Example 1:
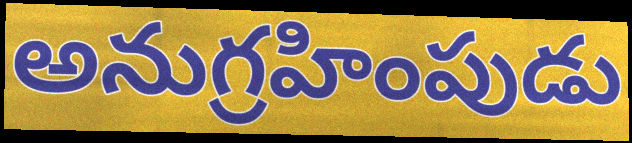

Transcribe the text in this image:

అనుగ్రహింపుడు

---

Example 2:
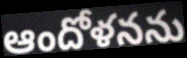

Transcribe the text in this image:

ఆందోళనను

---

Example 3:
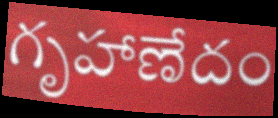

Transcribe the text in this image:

గృహాణేదం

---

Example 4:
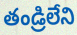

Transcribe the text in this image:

తండ్రిలేని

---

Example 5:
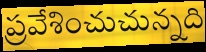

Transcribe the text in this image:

ప్రవేశించుచున్నది